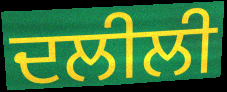
ਦਲੀਲੀ